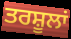
ਤਰਸ਼ੂਲਾਂ